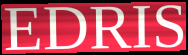
EDRIS